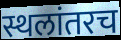
स्थलांतरच